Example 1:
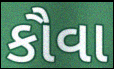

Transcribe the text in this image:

કૌવા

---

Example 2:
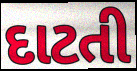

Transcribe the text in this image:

દાટતી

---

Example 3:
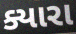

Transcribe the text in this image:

ક્યારા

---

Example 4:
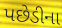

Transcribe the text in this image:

પછેડીના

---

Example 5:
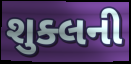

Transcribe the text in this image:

શુક્લની